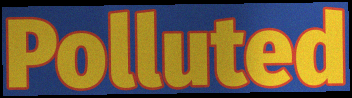
Polluted